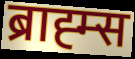
ब्राह्म्स